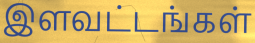
இளவட்டங்கள்